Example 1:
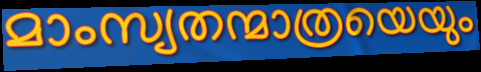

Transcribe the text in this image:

മാംസ്യതന്മാത്രയെയും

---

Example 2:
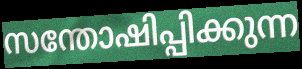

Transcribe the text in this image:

സന്തോഷിപ്പിക്കുന്ന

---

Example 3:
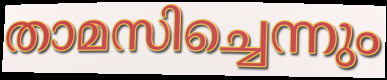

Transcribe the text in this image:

താമസിച്ചെന്നും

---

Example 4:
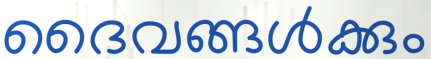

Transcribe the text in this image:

ദൈവങ്ങൾക്കും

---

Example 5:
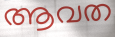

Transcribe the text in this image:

ആവത